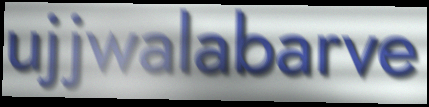
ujjwalabarve